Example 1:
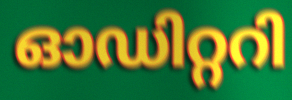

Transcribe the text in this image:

ഓഡിറ്ററി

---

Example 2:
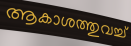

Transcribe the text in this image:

ആകാശത്തുവച്ച്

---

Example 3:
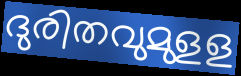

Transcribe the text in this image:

ദുരിതവുമുളള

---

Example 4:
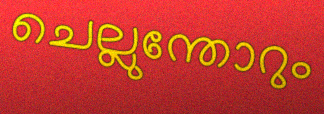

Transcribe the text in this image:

ചെല്ലുന്തോറും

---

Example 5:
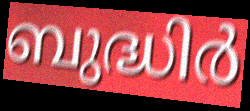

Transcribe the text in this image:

ബുദ്ധിർ